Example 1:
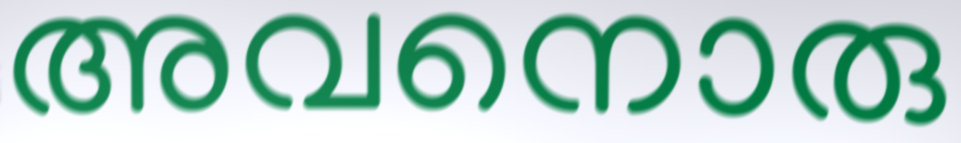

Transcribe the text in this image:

അവനൊരു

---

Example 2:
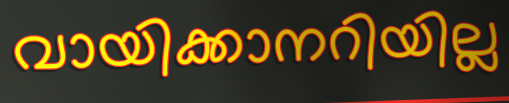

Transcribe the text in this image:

വായിക്കാനറിയില്ല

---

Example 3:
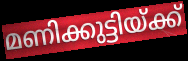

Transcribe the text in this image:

മണിക്കുട്ടിയ്ക്ക്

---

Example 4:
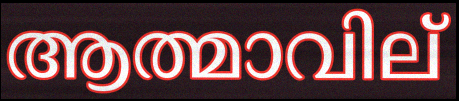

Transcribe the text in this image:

ആത്മാവില്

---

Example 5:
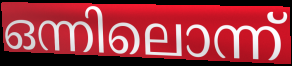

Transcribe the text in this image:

ഒന്നിലൊന്ന്